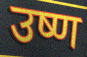
उष्ण